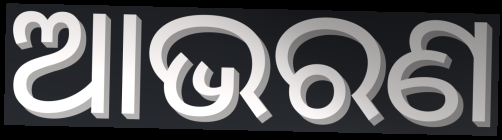
ଆଭରଣ